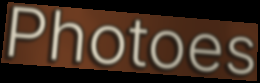
Photoes